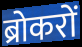
ब्रोकरों